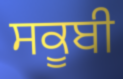
ਸਕੂਬੀ